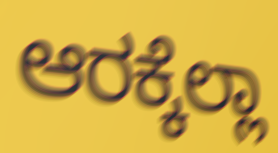
ಆರಕ್ಕೆಲ್ಲಾ